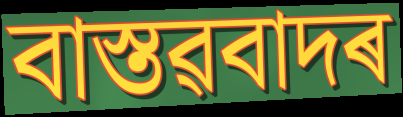
বাস্তৱবাদৰ